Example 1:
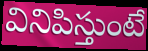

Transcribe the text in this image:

వినిపిస్తుంటే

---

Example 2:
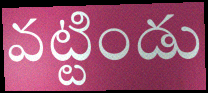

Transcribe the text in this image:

వట్టిండు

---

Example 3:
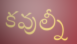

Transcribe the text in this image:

కవుల్నీ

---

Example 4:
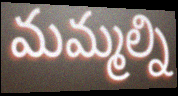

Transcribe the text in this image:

మమ్మల్ని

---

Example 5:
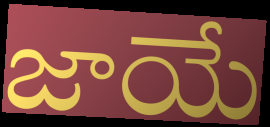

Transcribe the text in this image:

జాయే